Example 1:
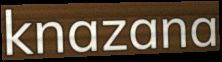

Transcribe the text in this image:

knazana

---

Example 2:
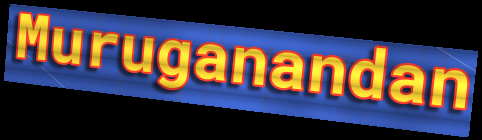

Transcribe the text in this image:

Muruganandan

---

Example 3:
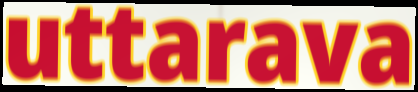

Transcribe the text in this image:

uttarava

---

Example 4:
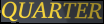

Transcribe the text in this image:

QUARTER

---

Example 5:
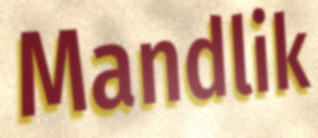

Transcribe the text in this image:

Mandlik